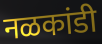
नळकांडी